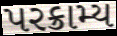
પરક્રામ્ય